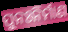
ପୁନଃନିର୍ମାଣ